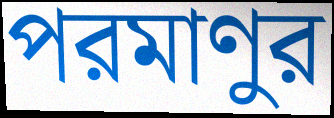
পরমাণুর